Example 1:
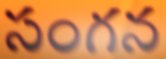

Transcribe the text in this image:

సంగన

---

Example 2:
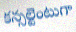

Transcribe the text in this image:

కన్సల్టెంటుగా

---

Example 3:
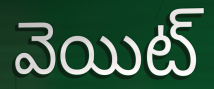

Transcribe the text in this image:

వెయిట్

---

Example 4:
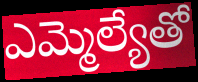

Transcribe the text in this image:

ఎమ్మెల్యేతో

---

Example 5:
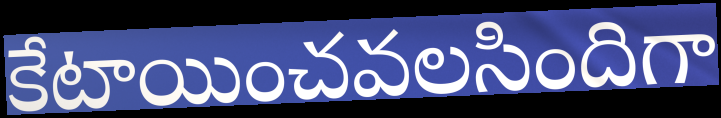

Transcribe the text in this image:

కేటాయించవలసిందిగా